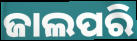
ଜାଲପରି